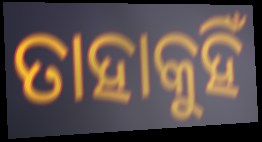
ତାହାକୁହିଁ